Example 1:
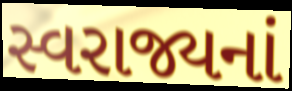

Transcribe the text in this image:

સ્વરાજ્યનાં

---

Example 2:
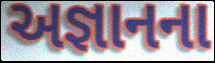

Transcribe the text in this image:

અજ્ઞાનના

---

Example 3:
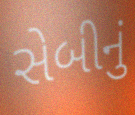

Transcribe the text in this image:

સેબીનું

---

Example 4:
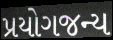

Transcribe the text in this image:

પ્રયોગજન્ય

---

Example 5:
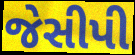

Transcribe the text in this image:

જેસીપી